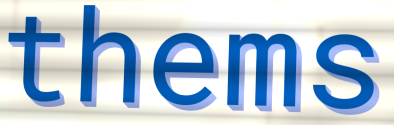
thems